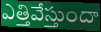
ఎత్తివేస్తుందా